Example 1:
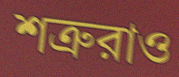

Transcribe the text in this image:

শত্রুরাও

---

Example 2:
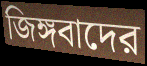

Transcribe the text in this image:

জিঙ্গবাদের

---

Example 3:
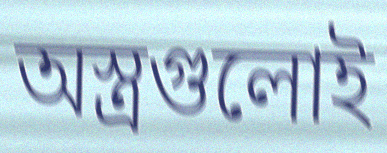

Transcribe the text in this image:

অস্ত্রগুলোই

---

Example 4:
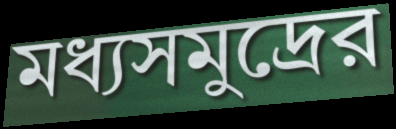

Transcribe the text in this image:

মধ্যসমুদ্রের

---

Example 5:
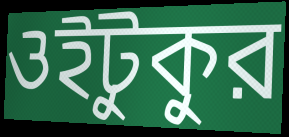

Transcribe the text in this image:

ওইটুকুর